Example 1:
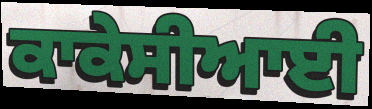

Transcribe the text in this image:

ਕਾਕੇਸੀਆਈ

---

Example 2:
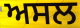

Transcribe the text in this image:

ਅਸਲ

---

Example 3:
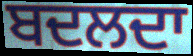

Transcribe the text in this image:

ਬਦਲਦਾ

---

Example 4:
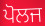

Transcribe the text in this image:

ਪੋਲਜ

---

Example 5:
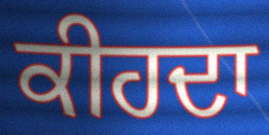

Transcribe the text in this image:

ਕੀਹਦਾ